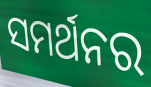
ସମର୍ଥନର